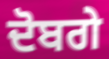
ਦੋਬਗੇ